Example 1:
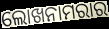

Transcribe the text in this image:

ଲୋଖନାମରାର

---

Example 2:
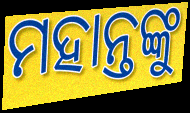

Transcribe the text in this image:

ମହାନ୍ତଙ୍କୁ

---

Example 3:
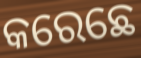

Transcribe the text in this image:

କରେଛେ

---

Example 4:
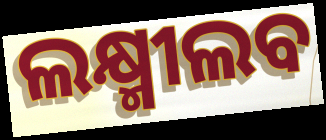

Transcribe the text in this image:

ଲକ୍ଷ୍ମୀଲବ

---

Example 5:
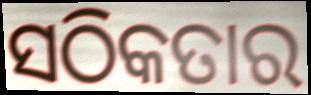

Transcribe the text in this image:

ସଠିକତାର